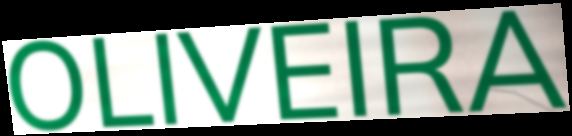
OLIVEIRA